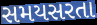
સમયસરતા